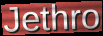
Jethro